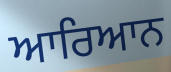
ਆਰਿਆਨ